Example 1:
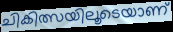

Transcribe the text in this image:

ചികിത്സയിലൂടെയാണ്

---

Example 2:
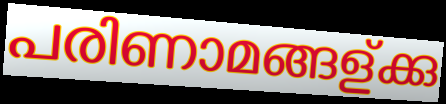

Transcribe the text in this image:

പരിണാമങ്ങള്ക്കു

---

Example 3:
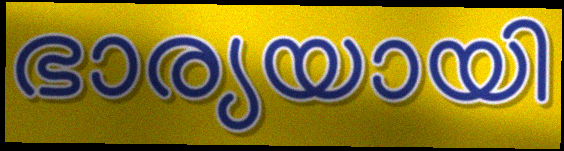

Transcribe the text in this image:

ഭാര്യയായി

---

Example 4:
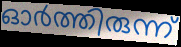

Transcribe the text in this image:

ഓർത്തിരുന്ന്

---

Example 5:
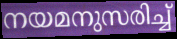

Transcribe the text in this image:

നയമനുസരിച്ച്